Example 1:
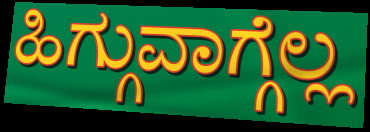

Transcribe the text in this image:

ಹಿಗ್ಗುವಾಗ್ಗೆಲ್ಲ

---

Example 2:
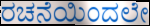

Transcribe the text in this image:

ರಚನೆಯಿಂದಲೇ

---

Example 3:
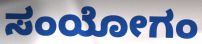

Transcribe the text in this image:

ಸಂಯೋಗಂ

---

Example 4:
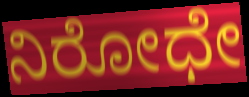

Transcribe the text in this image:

ನಿರೋಧೇ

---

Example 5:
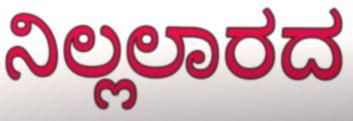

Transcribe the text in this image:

ನಿಲ್ಲಲಾರದ